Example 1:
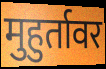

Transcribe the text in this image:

मुहुर्तावर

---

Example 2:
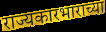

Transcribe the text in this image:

राज्यकारभाराच्या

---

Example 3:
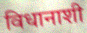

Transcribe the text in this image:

विधानाशी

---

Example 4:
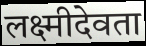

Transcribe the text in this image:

लक्ष्मीदेवता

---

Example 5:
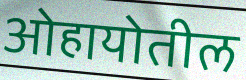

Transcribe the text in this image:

ओहायोतील